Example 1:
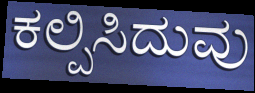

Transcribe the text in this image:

ಕಲ್ಪಿಸಿದುವು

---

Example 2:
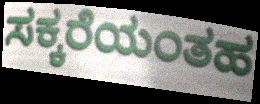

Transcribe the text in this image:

ಸಕ್ಕರೆಯಂತಹ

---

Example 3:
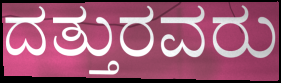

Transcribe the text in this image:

ದತ್ತುರವರು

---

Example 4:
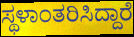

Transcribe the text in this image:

ಸ್ಥಳಾಂತರಿಸಿದ್ದಾರೆ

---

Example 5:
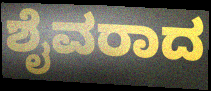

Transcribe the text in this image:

ಶೈವರಾದ